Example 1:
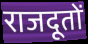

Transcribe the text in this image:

राजदूतों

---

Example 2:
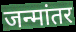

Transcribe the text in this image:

जन्मांतर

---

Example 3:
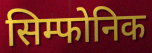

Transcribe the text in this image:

सिम्फोनिक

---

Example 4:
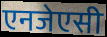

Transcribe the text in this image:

एनजेएसी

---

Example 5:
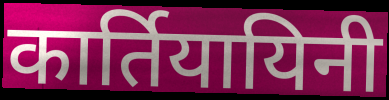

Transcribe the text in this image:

कार्तियायिनी